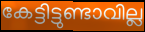
കേട്ടിട്ടുണ്ടാവില്ല